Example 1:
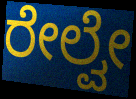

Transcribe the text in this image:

ರೇಲ್ವೇ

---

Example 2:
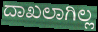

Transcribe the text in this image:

ದಾಖಲಾಗಿಲ್ಲ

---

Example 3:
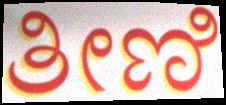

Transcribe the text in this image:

ತೀಣಿ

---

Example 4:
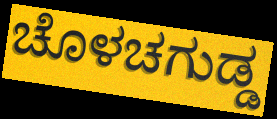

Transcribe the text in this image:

ಚೊಳಚಗುಡ್ಡ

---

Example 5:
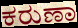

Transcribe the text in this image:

ಕರುಣಾ